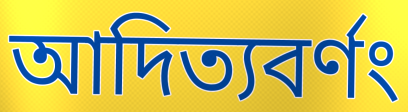
আদিত্যবর্ণং